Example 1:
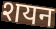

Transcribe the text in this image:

शयन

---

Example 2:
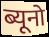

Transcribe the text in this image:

ब्यूनो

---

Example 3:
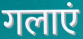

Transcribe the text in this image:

गलाएं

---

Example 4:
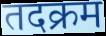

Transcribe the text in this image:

तदक्रम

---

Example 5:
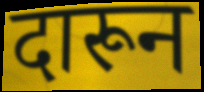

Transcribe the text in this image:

दारून